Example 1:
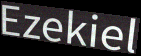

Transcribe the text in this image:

Ezekiel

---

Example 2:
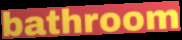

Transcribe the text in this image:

bathroom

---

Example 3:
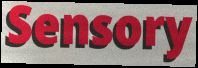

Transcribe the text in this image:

Sensory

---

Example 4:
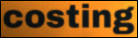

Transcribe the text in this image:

costing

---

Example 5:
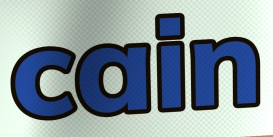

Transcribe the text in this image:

cain